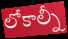
లోకాల్నీ